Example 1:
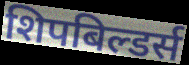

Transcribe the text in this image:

शिपबिल्डर्स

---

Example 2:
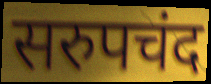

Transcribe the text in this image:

सरुपचंद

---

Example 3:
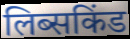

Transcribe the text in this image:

लिब्सकिंड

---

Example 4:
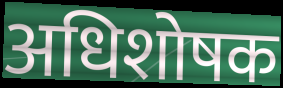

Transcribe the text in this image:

अधिशोषक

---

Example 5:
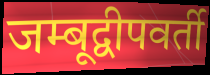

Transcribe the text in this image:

जम्बूद्वीपवर्ती